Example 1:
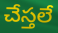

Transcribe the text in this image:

చేస్తలే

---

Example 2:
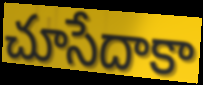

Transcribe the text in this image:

చూసేదాకా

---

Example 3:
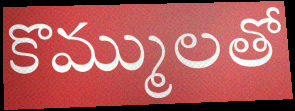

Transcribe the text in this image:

కొమ్ములతో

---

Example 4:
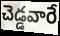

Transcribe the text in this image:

చెడ్డవారే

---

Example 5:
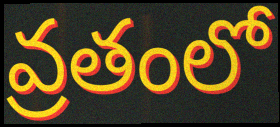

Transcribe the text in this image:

వ్రతంలో